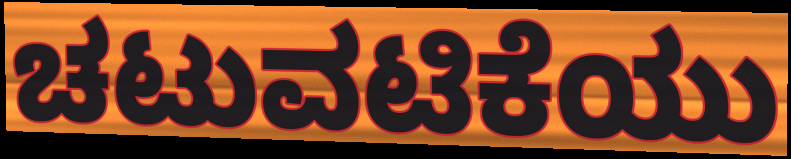
ಚಟುವಟಿಕೆಯು